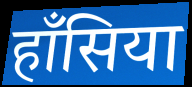
हाँसिया